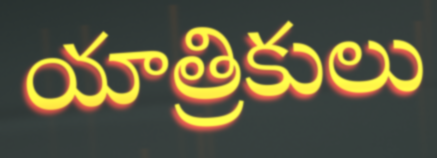
యాత్రికులు